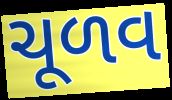
ચૂળવ